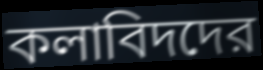
কলাবিদদের